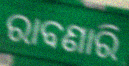
ରାବଣାରି